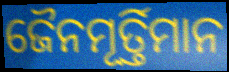
ଜୈନମୂର୍ତ୍ତିମାନ